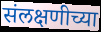
संलक्षणीच्या